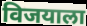
विजयाला